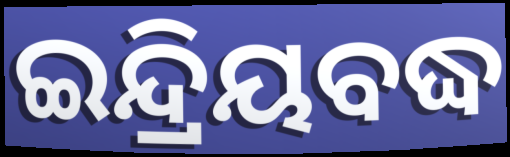
ଇନ୍ଦ୍ରିୟବଦ୍ଧ